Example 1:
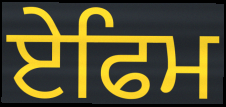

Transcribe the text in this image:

ਏਫਿਮ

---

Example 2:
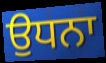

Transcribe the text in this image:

ਉਧਨਾ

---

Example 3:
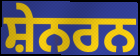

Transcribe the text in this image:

ਸ਼ੇਨਰਨ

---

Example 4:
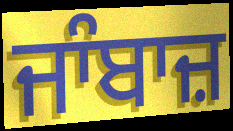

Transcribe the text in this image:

ਜਾੰਬਾਜ਼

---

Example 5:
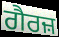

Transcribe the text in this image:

ਗੈਰਜ਼